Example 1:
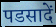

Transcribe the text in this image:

पडसादें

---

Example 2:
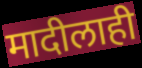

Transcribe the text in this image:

मादीलाही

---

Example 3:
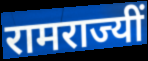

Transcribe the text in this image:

रामराज्यीं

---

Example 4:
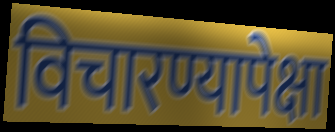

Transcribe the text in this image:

विचारण्यापेक्षा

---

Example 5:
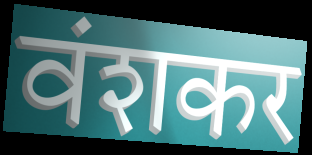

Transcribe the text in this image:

वंशकर